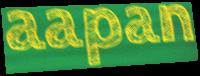
aapan